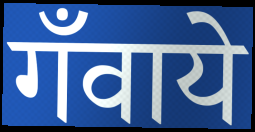
गँवाये